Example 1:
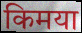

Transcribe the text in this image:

किमया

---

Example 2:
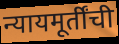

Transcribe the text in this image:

न्यायमूर्तींची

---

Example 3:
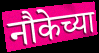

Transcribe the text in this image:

नौकेच्या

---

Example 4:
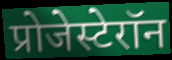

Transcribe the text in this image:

प्रोजेस्टेरॉन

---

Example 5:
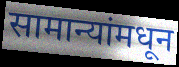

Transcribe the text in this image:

सामान्यांमधून